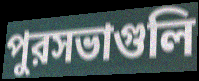
পুরসভাগুলি